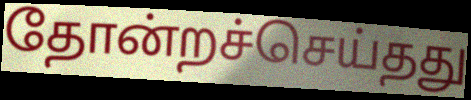
தோன்றச்செய்தது